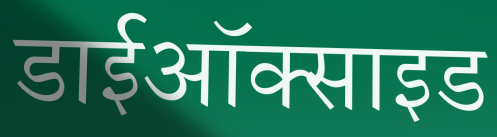
डाईऑक्साइड